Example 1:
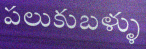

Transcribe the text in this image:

పలుకుబళ్ళు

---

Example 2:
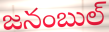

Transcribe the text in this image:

జనంబుల్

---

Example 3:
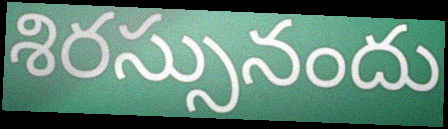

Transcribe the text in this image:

శిరస్సునందు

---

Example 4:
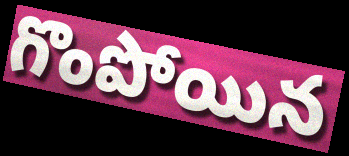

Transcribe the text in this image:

గొంపోయిన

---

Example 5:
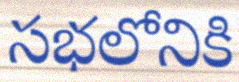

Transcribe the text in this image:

సభలోనికి